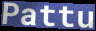
Pattu